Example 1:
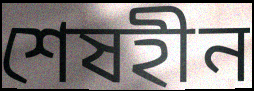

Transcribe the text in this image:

শেষহীন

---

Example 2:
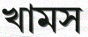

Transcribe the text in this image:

খামস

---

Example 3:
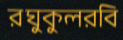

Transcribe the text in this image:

রঘুকুলরবি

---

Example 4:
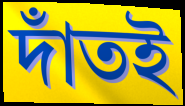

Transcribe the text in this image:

দাঁতই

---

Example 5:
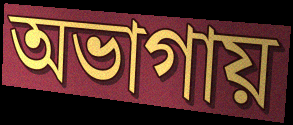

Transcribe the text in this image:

অভাগায়